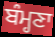
ਬੰਮ੍ਹਣਾ